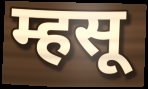
म्हसू